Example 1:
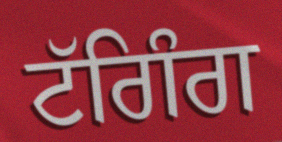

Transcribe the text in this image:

ਟੱਗਿੰਗ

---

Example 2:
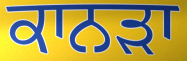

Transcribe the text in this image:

ਕਾਨੜਾ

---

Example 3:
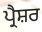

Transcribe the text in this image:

ਪ੍ਰੈਸ਼ਰ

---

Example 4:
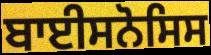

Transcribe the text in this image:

ਬਾਈਸਨੋਸਿਸ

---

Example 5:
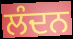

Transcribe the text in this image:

ਲੰਦਨ